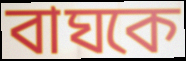
বাঘকে